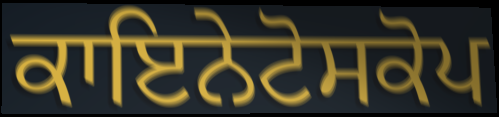
ਕਾਇਨੇਟੋਸਕੋਪ